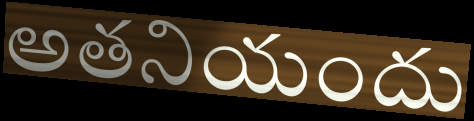
అతనియందు